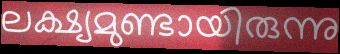
ലക്ഷ്യമുണ്ടായിരുന്നു